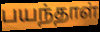
பயந்தாள்